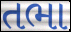
તભા